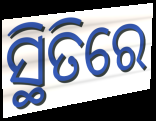
ସ୍ଥିତିରେ